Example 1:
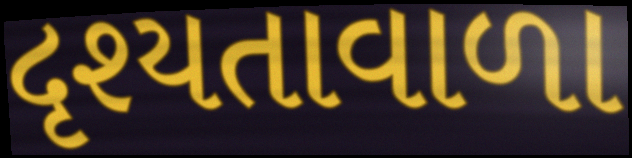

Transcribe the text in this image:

દૃશ્યતાવાળા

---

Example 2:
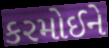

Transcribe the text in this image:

કરમોઈને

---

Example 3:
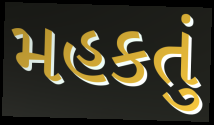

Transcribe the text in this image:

મહકતું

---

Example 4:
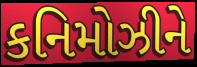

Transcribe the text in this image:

કનિમોઝીને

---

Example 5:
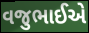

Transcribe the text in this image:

વજુભાઈએ